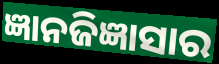
ଜ୍ଞାନଜିଜ୍ଞାସାର